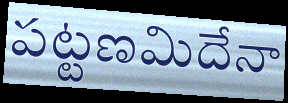
పట్టణమిదేనా